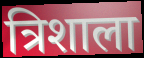
त्रिशाला